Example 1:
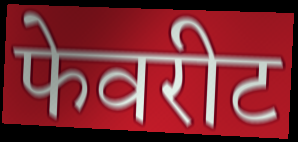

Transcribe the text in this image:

फेवरीट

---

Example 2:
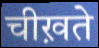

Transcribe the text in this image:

चीख़ते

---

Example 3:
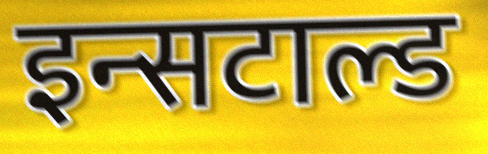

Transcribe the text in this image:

इन्सटाल्ड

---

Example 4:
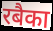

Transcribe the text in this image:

रबैका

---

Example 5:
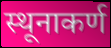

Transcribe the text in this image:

स्थूनाकर्ण